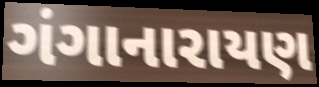
ગંગાનારાયણ